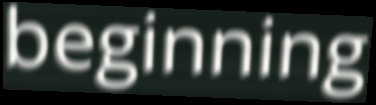
beginning